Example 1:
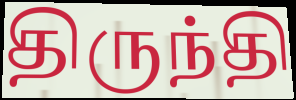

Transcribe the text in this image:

திருந்தி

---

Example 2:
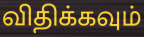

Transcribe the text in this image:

விதிக்கவும்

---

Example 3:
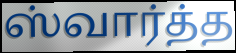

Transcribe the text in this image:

ஸ்வார்த்த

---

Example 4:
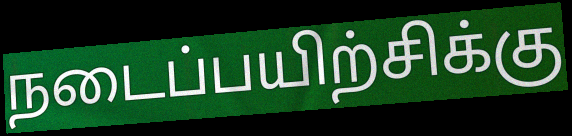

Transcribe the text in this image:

நடைப்பயிற்சிக்கு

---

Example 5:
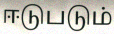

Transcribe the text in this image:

ஈடுபடும்